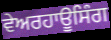
ਵੇਅਰਹਾਊਸਿੰਗ